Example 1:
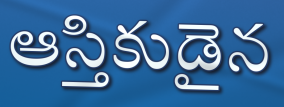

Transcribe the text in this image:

ఆస్తికుడైన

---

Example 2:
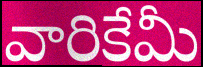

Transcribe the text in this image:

వారికేమీ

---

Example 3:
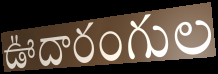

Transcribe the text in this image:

ఊదారంగుల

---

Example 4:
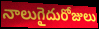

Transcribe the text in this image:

నాలుగైదురోజులు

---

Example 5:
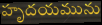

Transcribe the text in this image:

హృదయమును